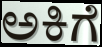
ಅಕಿಗೆ